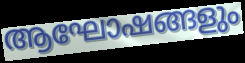
ആഘോഷങ്ങളും